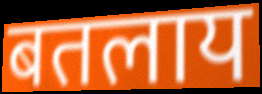
बतलाय